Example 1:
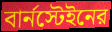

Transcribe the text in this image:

বার্নস্টেইনের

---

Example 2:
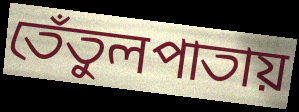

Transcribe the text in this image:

তেঁতুলপাতায়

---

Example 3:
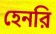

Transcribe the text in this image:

হেনরি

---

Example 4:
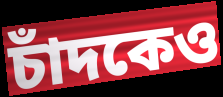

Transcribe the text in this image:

চাঁদকেও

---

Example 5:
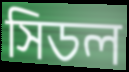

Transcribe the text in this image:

সিডল